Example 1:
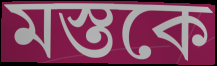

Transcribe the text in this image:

মস্তকে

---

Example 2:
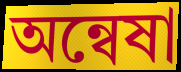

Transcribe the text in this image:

অন্বেষা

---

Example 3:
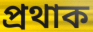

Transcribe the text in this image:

প্ৰথাক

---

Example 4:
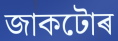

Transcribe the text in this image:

জাকটোৰ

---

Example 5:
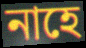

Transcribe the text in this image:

নাহে